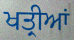
ਖਤ੍ਰੀਆਂ